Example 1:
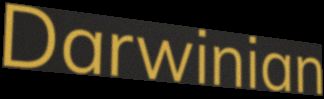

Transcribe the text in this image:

Darwinian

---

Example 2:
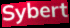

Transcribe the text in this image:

Sybert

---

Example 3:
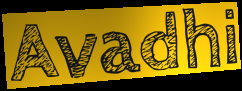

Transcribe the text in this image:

Avadhi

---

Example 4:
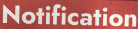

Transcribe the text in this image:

Notification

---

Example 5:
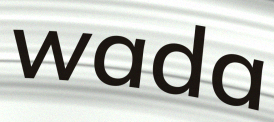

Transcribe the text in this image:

wada